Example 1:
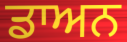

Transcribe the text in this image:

ਡਾਅਨ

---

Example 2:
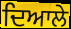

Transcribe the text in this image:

ਦਿਆਲੇ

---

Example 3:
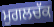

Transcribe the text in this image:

ਮੁਗਲਚੱਕ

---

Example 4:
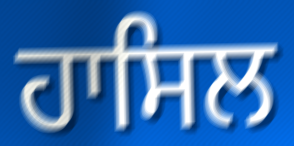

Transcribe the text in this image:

ਹਾਸਿਲ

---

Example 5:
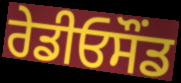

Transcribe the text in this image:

ਰੇਡੀਓਸੌਂਡ